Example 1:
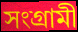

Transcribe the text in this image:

সংগ্ৰামী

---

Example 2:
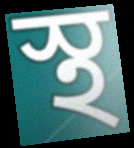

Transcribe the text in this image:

স্থ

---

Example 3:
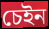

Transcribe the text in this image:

চেইন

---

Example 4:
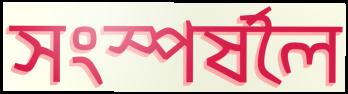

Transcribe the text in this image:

সংস্পৰ্ষলৈ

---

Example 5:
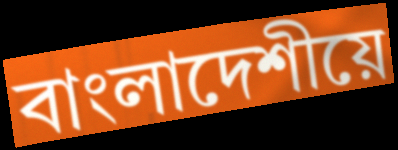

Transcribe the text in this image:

বাংলাদেশীয়ে